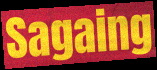
Sagaing